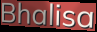
Bhalisa